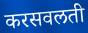
करसवलती